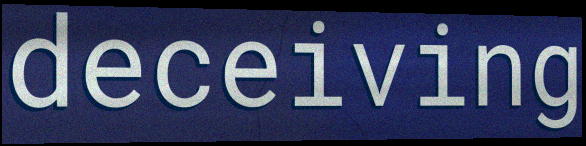
deceiving